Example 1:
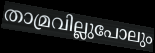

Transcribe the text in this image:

താമ്രവില്ലുപോലും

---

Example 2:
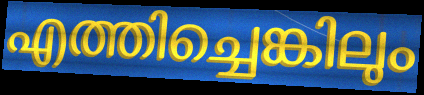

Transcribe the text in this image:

എത്തിച്ചെങ്കിലും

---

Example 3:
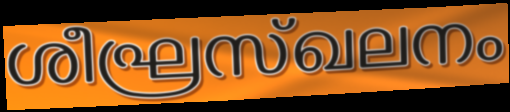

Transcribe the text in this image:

ശീഘ്രസ്ഖലനം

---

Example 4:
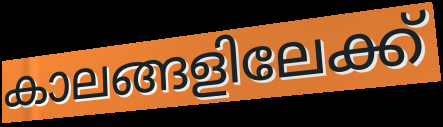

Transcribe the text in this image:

കാലങ്ങളിലേക്ക്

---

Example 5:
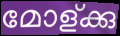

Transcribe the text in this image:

മോള്ക്കു